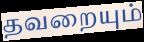
தவறையும்